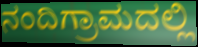
ನಂದಿಗ್ರಾಮದಲ್ಲಿ